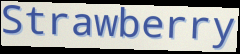
Strawberry